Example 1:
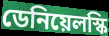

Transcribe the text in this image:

ডেনিয়েলস্কি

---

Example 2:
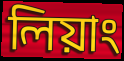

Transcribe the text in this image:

লিয়াং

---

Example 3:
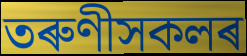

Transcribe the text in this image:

তৰুণীসকলৰ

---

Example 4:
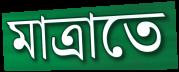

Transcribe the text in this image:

মাত্ৰাতে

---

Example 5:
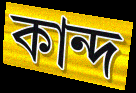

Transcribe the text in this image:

কান্দ